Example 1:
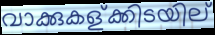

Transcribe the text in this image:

വാക്കുകള്ക്കിടയില്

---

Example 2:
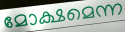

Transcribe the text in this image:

മോക്ഷമെന്ന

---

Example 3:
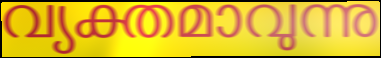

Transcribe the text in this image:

വ്യക്തമാവുന്നു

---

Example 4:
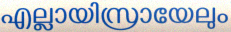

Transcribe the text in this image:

എല്ലായിസ്രായേലും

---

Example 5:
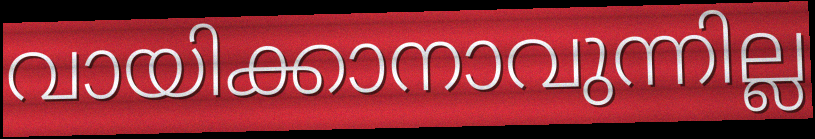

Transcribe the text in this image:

വായിക്കാനാവുന്നില്ല